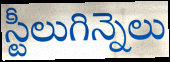
స్టీలుగిన్నెలు